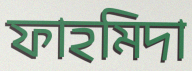
ফাহমিদা